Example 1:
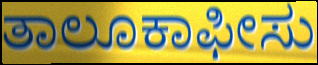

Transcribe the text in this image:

ತಾಲೂಕಾಫೀಸು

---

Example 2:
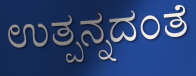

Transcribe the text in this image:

ಉತ್ಪನ್ನದಂತೆ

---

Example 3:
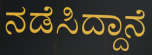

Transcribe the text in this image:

ನಡೆಸಿದ್ದಾನೆ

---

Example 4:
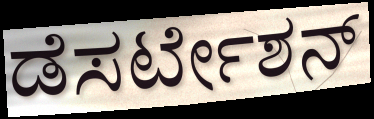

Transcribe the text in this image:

ಡೆಸರ್ಟೇಶನ್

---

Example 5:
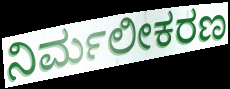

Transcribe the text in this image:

ನಿರ್ಮಲೀಕರಣ